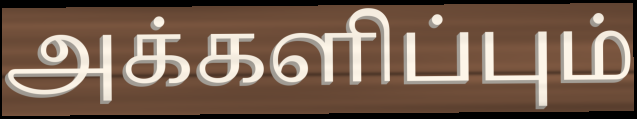
அக்களிப்பும்